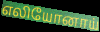
எலியோனாய்